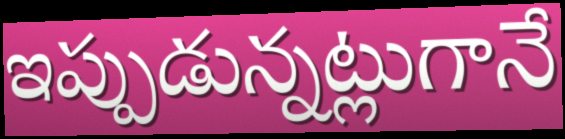
ఇప్పుడున్నట్లుగానే